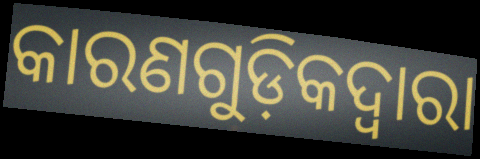
କାରଣଗୁଡ଼ିକଦ୍ବାରା